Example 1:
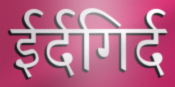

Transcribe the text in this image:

ईर्दगिर्द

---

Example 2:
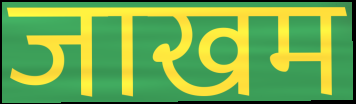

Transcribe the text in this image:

जाखम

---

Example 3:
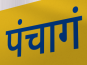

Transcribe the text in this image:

पंचागं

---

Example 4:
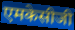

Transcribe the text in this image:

एमकेसीजी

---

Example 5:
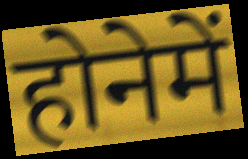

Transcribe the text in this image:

होनेमें